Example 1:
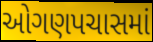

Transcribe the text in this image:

ઓગણપચાસમાં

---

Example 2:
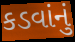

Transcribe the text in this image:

કડવાંનું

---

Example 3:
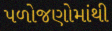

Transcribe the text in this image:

પળોજણોમાંથી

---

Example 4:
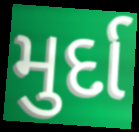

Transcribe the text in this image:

મુર્દા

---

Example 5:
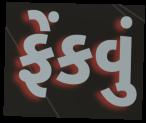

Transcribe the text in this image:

ફેંકવું